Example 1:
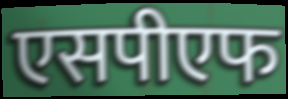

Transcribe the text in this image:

एसपीएफ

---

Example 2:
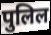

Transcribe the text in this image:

पुलिल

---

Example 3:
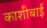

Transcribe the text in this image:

काशीबाई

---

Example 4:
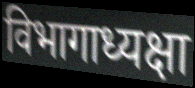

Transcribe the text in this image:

विभागाध्यक्षा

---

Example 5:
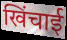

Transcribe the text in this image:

खिंचाई